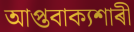
আপ্তবাক্যশাৰী